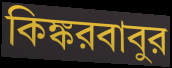
কিঙ্করবাবুর